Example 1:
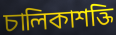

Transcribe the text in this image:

চালিকাশক্তি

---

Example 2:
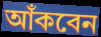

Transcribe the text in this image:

আঁকবেন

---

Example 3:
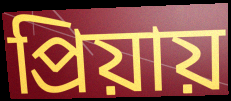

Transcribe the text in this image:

প্রিয়ায়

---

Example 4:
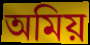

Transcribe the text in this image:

অমিয়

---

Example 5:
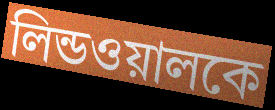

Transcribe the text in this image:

লিন্ডওয়ালকে